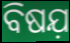
ବିଷଯ଼